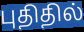
புதிதில்